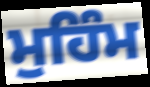
ਮੁਹਿੰਮ